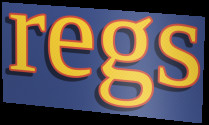
regs